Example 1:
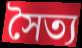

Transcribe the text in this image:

সৈত্য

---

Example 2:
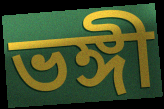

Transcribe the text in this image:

ভঙ্গী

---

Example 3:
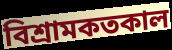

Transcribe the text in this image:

বিশ্রামকতকাল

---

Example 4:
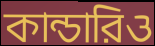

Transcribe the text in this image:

কান্ডারিও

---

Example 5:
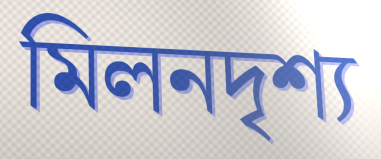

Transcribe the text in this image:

মিলনদৃশ্য